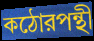
কঠোরপন্থী